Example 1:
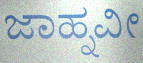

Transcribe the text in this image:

ಜಾಹ್ನವೀ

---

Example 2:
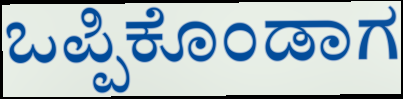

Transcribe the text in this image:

ಒಪ್ಪಿಕೊಂಡಾಗ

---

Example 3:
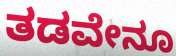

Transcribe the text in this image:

ತಡವೇನೂ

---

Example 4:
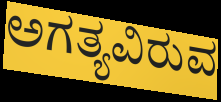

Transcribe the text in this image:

ಅಗತ್ಯವಿರುವ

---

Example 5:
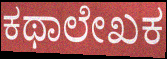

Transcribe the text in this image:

ಕಥಾಲೇಖಕ